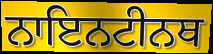
ਨਾਇਨਟੀਨਥ